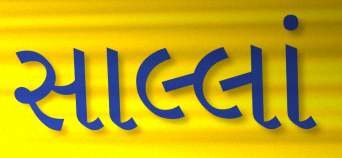
સાલ્લાં